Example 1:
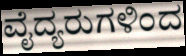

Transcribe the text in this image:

ವೈದ್ಯರುಗಳಿಂದ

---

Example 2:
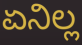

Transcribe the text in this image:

ಏನಿಲ್ಲ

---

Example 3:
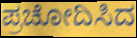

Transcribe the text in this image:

ಪ್ರಚೋದಿಸಿದ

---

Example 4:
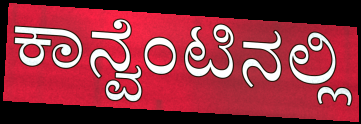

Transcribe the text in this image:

ಕಾನ್ವೆಂಟಿನಲ್ಲಿ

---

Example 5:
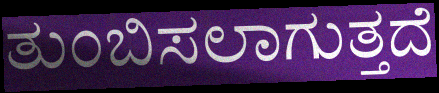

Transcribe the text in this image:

ತುಂಬಿಸಲಾಗುತ್ತದೆ